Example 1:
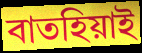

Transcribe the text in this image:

বাতহিয়াই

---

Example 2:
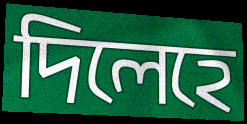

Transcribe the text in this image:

দিলেহে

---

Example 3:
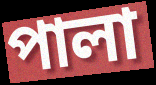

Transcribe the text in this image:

পালা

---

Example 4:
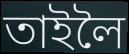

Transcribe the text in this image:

তাইলৈ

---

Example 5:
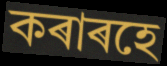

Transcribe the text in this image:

কৰাৰহে